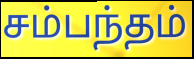
சம்பந்தம்